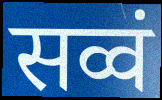
सव्वं